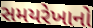
સમયરેખાનો